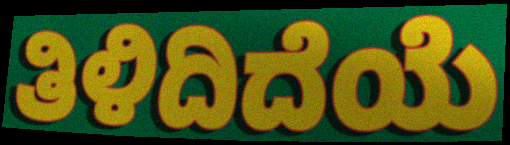
ತಿಳಿದಿದೆಯೆ